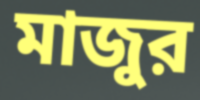
মাজুর